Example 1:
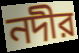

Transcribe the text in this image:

নদীর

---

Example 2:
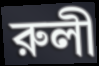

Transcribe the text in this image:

রুলী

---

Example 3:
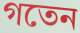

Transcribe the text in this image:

গতেন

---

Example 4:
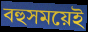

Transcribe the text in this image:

বহুসময়েই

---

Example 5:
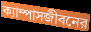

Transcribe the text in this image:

ক্যাম্পাসজীবনের